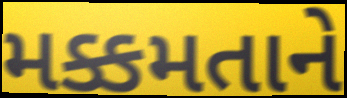
મક્કમતાને